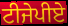
ਟੀਜੇਪੀਏ